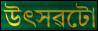
উৎসৱটো